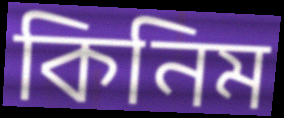
কিনিম